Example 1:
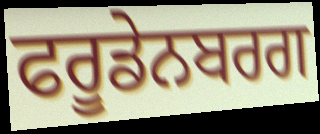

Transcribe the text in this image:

ਫਰੂਡੇਨਬਰਗ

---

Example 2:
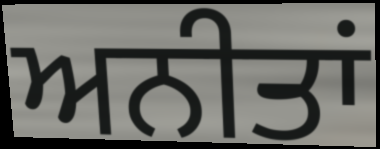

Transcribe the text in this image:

ਅਨੀਤਾਂ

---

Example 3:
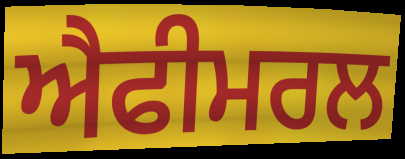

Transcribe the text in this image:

ਐਫੀਮਰਲ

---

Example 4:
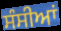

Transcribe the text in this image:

ਸੰਸੀਆਂ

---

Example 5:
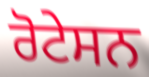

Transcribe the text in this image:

ਰੋਟੇਸਨ